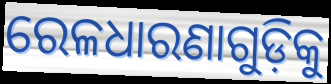
ରେଳଧାରଣାଗୁଡ଼ିକୁ